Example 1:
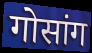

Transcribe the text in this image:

गोसांग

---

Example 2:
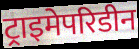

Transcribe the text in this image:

ट्राइमेपरिडीन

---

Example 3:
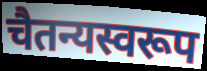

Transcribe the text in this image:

चैतन्यस्वरूप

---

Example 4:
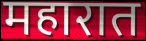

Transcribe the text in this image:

महारात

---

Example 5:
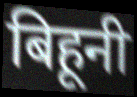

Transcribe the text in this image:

बिहूनी